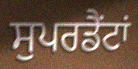
ਸੁਪਰਡੈਂਟਾਂ